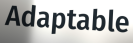
Adaptable